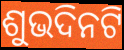
ଶୁଭଦିନଟି